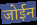
जोईन